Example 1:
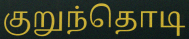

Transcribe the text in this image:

குறுந்தொடி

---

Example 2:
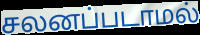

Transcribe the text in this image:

சலனப்படாமல்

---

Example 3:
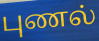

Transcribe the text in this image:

புணல்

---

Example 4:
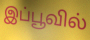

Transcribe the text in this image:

இப்பூவில்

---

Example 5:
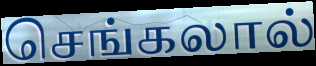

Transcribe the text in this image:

செங்கலால்